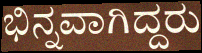
ಭಿನ್ನವಾಗಿದ್ದರು